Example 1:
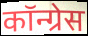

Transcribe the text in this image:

कॉन्ग्रेस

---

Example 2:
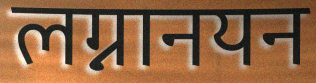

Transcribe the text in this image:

लग्नानयन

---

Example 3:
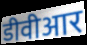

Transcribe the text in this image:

डीवीआर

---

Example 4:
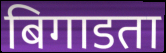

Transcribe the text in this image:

बिगाडता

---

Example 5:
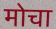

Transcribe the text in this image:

मोचा